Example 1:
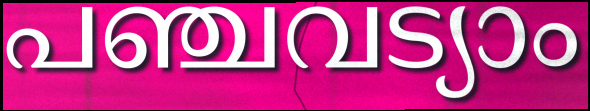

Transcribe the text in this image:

പഞ്ചവട്യാം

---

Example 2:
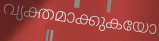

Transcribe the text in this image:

വ്യക്തമാക്കുകയോ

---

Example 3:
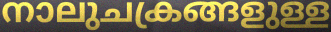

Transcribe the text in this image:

നാലുചക്രങ്ങളുള്ള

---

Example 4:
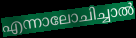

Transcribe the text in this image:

എന്നാലോചിച്ചാൽ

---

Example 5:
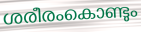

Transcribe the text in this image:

ശരീരംകൊണ്ടും